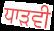
ਧਾੜਵੀ